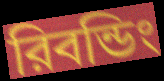
রিবন্ডিং